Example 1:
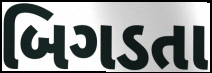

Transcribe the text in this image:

બિગડતા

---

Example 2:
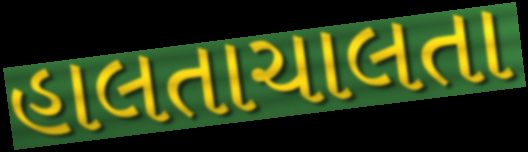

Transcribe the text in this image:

હાલતાચાલતા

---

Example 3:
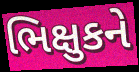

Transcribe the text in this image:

ભિક્ષુકને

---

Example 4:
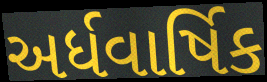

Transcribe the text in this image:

અર્ધવાર્ષિક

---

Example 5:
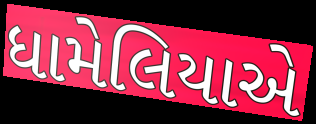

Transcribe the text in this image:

ધામેલિયાએ